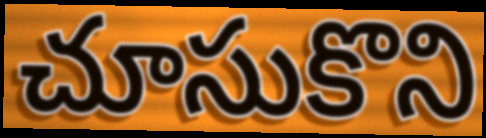
చూసుకొని